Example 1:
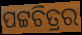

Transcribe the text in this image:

ପଟ୍ଟଚିତ୍ରର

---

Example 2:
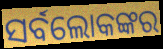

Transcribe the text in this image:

ସର୍ବଲୋକଙ୍କର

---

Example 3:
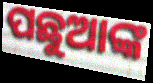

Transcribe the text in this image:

ପଛୁଆଙ୍କ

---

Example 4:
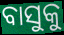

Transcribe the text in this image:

ବାସୁକୁ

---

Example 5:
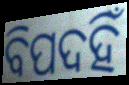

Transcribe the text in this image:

ବିପଦହିଁ